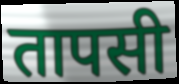
तापसी